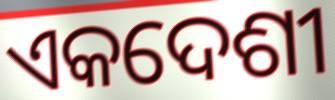
ଏକଦେଶୀ